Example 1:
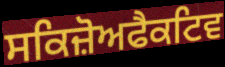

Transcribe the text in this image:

ਸਕਿਜ਼ੋਅਫੈਕਟਿਵ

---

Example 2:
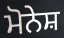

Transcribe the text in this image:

ਮੋਨੇਸ਼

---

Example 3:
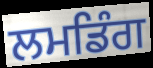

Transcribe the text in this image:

ਲਮਡਿੰਗ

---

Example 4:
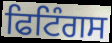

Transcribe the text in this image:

ਫਿਟਿੰਗਸ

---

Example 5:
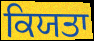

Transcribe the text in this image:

ਕਿਯਤਾ